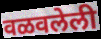
वळवलेली